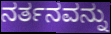
ನರ್ತನವನ್ನು